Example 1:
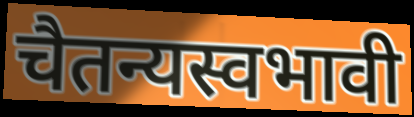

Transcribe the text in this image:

चैतन्यस्वभावी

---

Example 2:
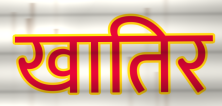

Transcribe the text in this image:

खातिर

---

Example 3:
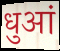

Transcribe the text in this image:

धुआं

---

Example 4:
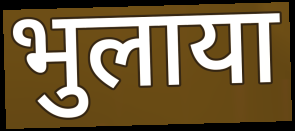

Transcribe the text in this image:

भुलाया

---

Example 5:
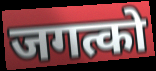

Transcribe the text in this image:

जगत्को